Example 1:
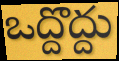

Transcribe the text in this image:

ఒద్దొద్దు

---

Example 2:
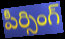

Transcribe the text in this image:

పీర్సింగ్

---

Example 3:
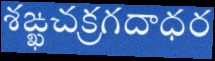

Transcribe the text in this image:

శఙ్ఖచక్రగదాధర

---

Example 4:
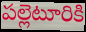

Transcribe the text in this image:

పల్లెటూరికి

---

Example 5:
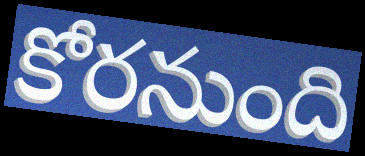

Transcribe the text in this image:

కోరనుంది